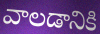
వాలడానికి